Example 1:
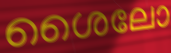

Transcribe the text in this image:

ശൈലോ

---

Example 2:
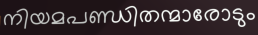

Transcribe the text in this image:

നിയമപണ്ഡിതന്മാരോടും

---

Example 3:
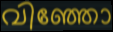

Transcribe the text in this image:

വിഞ്ഞോ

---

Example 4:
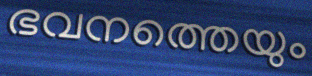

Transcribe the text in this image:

ഭവനത്തെയും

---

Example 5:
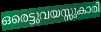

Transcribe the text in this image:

ഒരെട്ടുവയസ്സുകാരി